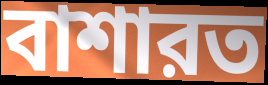
বাশারত